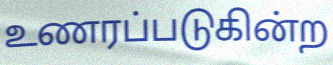
உணரப்படுகின்ற